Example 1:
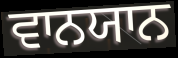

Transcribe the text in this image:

ਵਾਨਯਾਨ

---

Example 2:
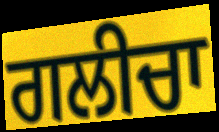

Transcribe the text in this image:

ਗਲੀਚਾ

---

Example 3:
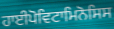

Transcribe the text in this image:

ਹਾਈਪੋਵਿਟਾਮਿਨੋਸਿਸ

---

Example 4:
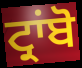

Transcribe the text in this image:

ਟ੍ਰਾਂਬੋ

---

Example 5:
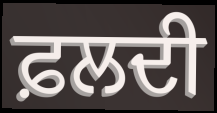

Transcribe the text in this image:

ਫ਼ਲਦੀ